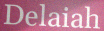
Delaiah